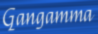
Gangamma